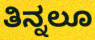
ತಿನ್ನಲೂ